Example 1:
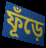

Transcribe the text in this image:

ফূঁড়ে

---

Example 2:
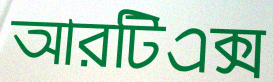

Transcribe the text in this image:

আরটিএক্স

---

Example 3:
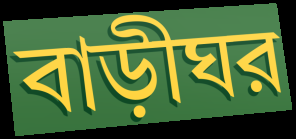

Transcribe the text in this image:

বাড়ীঘর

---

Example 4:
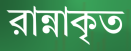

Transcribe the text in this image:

রান্নাকৃত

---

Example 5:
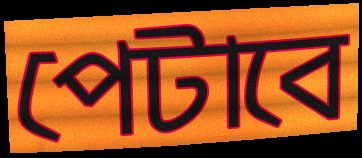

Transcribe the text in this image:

পেটাবে